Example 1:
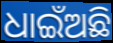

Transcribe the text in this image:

ଧାଇଁଅଛି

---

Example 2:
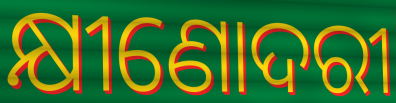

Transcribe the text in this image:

କ୍ଷୀଣୋଦରୀ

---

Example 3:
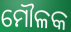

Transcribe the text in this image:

ମୌଳକ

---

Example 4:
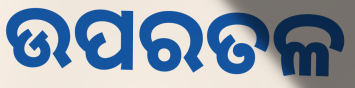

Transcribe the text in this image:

ଉପରତଳ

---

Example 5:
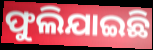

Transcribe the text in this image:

ଫୁଲିଯାଇଛି